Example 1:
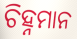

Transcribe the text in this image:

ଚିହ୍ନମାନ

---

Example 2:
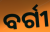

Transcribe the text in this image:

ବର୍ଗୀ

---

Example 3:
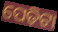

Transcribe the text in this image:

ପେଡ଼ିଟା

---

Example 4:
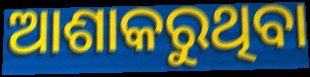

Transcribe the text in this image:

ଆଶାକରୁଥିବା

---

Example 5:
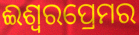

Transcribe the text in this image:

ଈଶ୍ୱରପ୍ରେମର